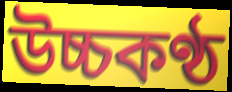
উচ্চকণ্ঠ